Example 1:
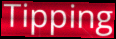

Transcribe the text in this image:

Tipping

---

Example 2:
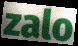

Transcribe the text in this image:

zalo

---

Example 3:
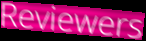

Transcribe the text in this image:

Reviewers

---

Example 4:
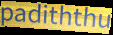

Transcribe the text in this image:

padiththu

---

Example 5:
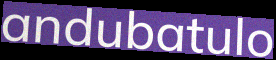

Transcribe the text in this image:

andubatulo